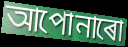
আপোনাৰো